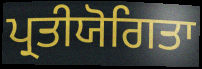
ਪ੍ਰਤੀਯੋਗਿਤਾ